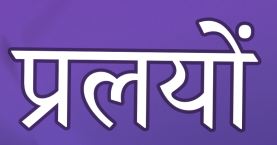
प्रलयों